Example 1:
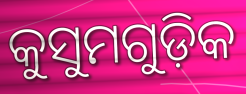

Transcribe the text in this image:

କୁସୁମଗୁଡ଼ିକ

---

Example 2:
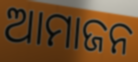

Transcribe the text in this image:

ଆମାଜନ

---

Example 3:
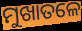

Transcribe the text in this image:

ମୁଖାତଳେ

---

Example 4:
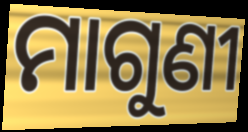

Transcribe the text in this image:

ମାଗୁଣୀ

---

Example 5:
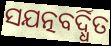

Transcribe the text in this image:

ସଯତ୍ନବର୍ଦ୍ଧିତ